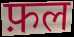
फ़ल